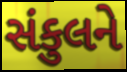
સંકુલને